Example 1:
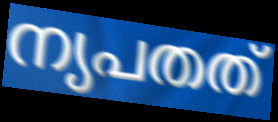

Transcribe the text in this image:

ന്യപതത്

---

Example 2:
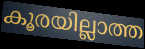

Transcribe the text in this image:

കൂരയില്ലാത്ത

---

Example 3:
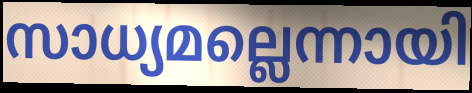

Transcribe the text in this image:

സാധ്യമല്ലെന്നായി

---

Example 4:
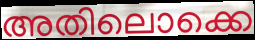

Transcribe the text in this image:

അതിലൊക്കെ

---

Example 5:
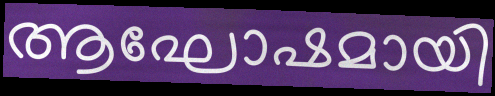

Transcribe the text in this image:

ആഘോഷമായി